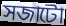
সজাটো